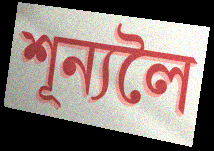
শূন্যলৈ